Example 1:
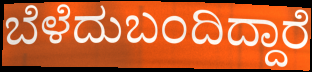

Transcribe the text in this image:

ಬೆಳೆದುಬಂದಿದ್ದಾರೆ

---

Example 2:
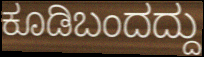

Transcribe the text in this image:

ಕೂಡಿಬಂದದ್ದು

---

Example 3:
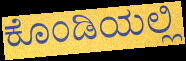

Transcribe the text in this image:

ಕೊಂಡಿಯಲ್ಲಿ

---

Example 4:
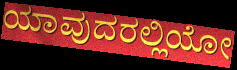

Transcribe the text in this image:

ಯಾವುದರಲ್ಲಿಯೋ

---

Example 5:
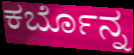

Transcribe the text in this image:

ಕರ್ಬೊನ್ನ